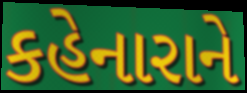
કહેનારાને